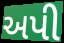
અપી